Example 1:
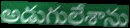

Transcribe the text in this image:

అడుగులేశాను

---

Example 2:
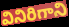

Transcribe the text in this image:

వినిరిగాని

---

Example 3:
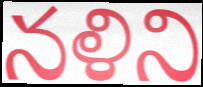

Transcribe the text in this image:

నళిని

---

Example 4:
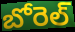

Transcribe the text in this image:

బోరెల్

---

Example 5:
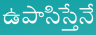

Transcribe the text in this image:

ఉపాసిస్తేనే